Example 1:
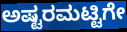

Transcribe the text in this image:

ಅಷ್ಟರಮಟ್ಟಿಗೇ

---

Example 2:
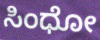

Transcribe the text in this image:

ಸಿಂಧೋ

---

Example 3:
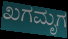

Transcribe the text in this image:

ಖಗಮೃಗ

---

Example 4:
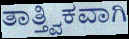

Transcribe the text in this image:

ತಾತ್ತ್ವಿಕವಾಗಿ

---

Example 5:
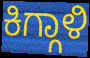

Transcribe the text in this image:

ಕಿಗ್ಗಾಳಿ